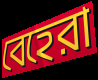
বেহেরা